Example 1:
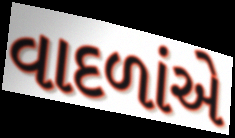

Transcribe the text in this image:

વાદળાંએ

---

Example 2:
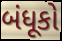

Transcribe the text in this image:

બંધૂકો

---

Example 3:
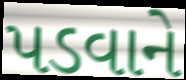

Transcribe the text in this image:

પડવાને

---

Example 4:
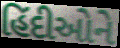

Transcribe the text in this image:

હિંદીઓને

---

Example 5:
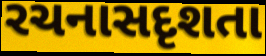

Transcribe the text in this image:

રચનાસદૃશતા